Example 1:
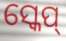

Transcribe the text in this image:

ସ୍କେପ୍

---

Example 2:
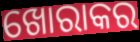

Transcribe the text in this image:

ଖୋରାକର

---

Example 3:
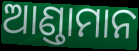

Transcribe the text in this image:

ଆଣ୍ଡାମାନ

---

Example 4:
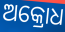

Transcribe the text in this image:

ଅକ୍ରୋଧ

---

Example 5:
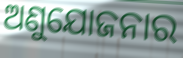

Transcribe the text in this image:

ଅଣୁଯୋଜନାର